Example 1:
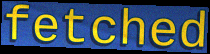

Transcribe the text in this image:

fetched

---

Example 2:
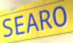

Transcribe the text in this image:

SEARO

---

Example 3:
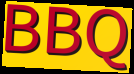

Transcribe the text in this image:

BBQ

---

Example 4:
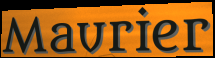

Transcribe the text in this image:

Maurier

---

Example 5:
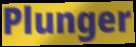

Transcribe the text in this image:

Plunger